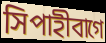
সিপাহীবাগে